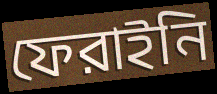
ফেরাইনি